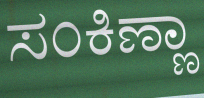
ಸಂಕಿಣ್ಣಾ